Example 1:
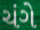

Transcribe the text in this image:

ચંગે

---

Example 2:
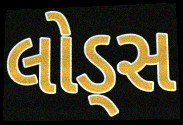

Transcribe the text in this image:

લોડ્સ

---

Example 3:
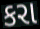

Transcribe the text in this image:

કરા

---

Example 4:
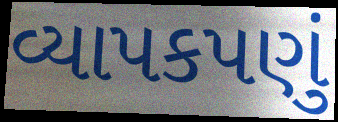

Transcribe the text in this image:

વ્યાપકપણું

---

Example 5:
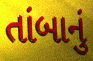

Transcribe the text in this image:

તાંબાનું